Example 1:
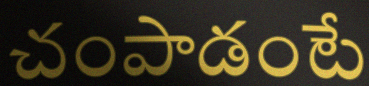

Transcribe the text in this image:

చంపాడంటే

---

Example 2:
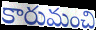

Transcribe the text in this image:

కారుమంచి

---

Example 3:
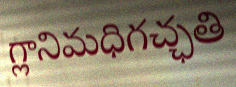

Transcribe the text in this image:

గ్లానిమధిగచ్ఛతి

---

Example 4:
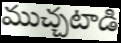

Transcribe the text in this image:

ముచ్చటాడి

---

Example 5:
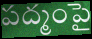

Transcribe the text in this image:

పద్మంపై